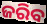
ଜରିବ